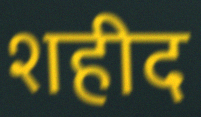
शहीद